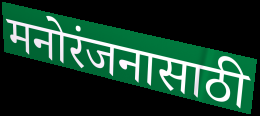
मनोरंजनासाठी